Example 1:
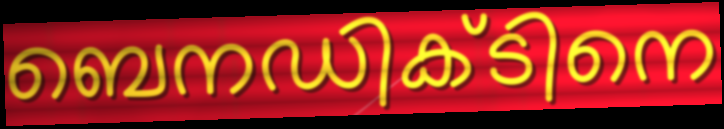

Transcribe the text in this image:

ബെനഡിക്ടിനെ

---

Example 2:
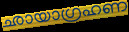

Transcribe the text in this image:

ഛായാഗ്രഹണ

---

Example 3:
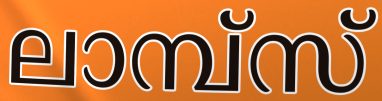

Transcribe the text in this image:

ലാമ്പ്സ്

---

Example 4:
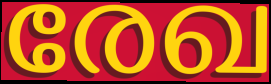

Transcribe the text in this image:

രേഖ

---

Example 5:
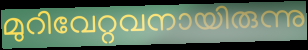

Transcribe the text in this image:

മുറിവേറ്റവനായിരുന്നു